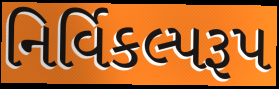
નિર્વિકલ્પરૂપ